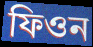
ফিওন